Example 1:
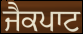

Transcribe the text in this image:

ਜੈਕਪਾਟ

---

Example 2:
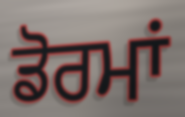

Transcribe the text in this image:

ਡੋਰਮਾਂ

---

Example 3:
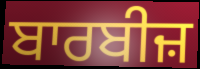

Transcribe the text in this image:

ਬਾਰਬੀਜ਼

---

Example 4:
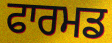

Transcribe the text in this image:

ਫਾਰਮਡ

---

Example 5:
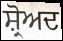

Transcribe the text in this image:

ਸ਼੍ਰੋਅਦ